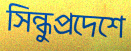
সিন্ধুপ্রদেশে